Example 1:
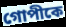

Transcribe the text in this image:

গোপীকে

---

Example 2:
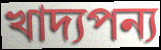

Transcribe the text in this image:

খাদ্যপন্য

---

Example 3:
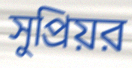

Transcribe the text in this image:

সুপ্রিয়র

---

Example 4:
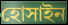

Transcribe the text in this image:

হোসাইন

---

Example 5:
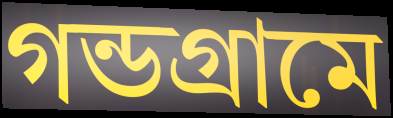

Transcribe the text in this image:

গন্ডগ্রামে